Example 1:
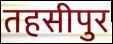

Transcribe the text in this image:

तहसीपुर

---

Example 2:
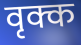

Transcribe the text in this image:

वृक्क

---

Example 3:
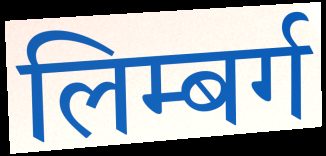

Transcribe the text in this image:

लिम्बर्ग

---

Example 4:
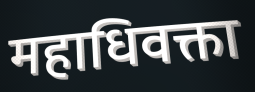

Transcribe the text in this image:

महाधिवक्ता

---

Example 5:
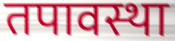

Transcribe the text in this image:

तपावस्था